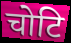
चोटि